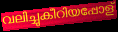
വലിച്ചുകീറിയപ്പോള്